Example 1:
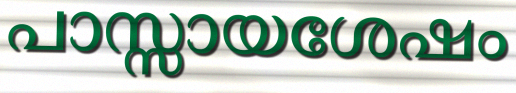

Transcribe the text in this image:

പാസ്സായശേഷം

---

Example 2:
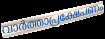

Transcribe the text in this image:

വാർത്താപ്രക്ഷേപണം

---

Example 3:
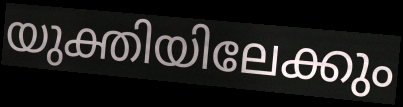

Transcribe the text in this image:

യുക്തിയിലേക്കും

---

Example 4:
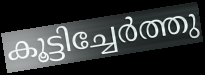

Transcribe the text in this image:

കൂട്ടിച്ചേർത്തു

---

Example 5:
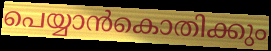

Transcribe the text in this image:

പെയ്യാൻകൊതിക്കും